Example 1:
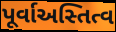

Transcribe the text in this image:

પૂર્વાઅસ્તિત્વ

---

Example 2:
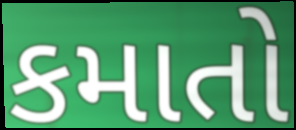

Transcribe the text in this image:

કમાતો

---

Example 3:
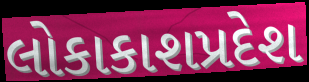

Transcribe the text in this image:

લોકાકાશપ્રદેશ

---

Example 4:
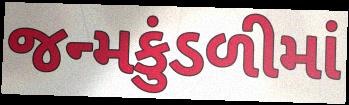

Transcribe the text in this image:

જન્મકુંડળીમાં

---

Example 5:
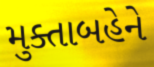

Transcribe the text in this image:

મુક્તાબહેને